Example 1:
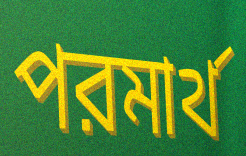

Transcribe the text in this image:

পরমার্থ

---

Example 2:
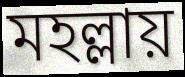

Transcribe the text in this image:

মহল্লায়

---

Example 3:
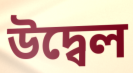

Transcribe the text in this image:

উদ্বেল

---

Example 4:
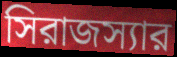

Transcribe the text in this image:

সিরাজস্যার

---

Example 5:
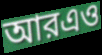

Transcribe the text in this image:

আরএও